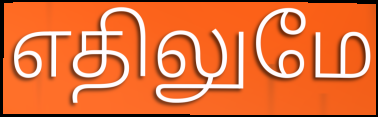
எதிலுமே